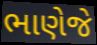
ભાણેજે